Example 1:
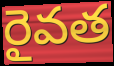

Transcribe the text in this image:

రైవత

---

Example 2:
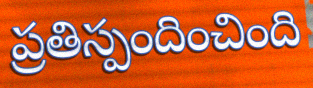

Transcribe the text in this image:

ప్రతిస్పందించింది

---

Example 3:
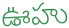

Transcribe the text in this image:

ఊహు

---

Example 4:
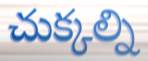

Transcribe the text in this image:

చుక్కల్ని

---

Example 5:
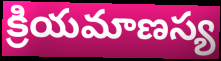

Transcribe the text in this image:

క్రియమాణస్య